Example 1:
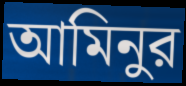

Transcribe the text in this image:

আমিনুর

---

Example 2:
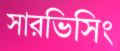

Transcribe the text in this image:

সারভিসিং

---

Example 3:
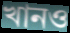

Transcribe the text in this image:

খানও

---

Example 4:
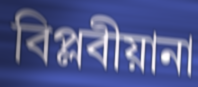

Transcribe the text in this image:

বিপ্লবীয়ানা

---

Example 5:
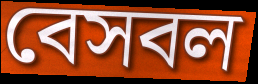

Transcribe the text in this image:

বেসবল